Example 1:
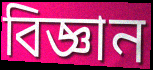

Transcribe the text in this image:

বিজ্ঞান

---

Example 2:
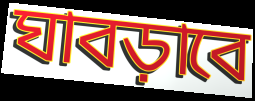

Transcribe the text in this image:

ঘাবড়াবে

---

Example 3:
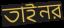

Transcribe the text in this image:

তাইনর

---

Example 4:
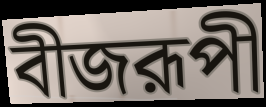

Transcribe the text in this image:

বীজরূপী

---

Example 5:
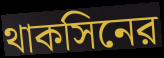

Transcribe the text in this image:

থাকসিনের